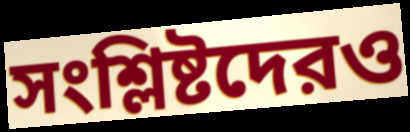
সংশ্লিষ্টদেরও